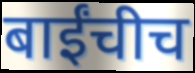
बाईंचीच